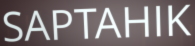
SAPTAHIK